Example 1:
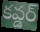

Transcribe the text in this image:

కవ్డర్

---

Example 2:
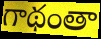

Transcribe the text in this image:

గాథంతా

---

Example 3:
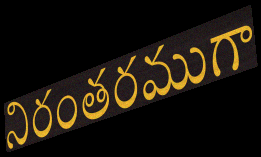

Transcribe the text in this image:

నిరంతరముగా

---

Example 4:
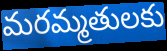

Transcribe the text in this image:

మరమ్మతులకు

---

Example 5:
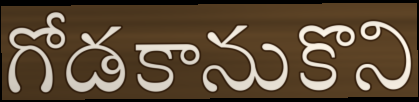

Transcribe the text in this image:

గోడకానుకొని